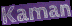
Kaman